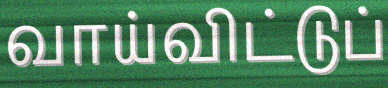
வாய்விட்டுப்